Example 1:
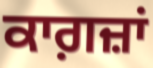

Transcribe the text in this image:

ਕਾਗ਼ਜ਼ਾਂ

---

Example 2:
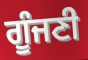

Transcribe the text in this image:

ਗੂੰਜਣੀ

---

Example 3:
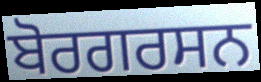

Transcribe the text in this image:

ਬੋਰਗਰਸਨ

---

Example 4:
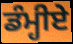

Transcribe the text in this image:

ਡੰਮ੍ਹੀਏ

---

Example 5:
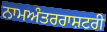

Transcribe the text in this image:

ਨਾਮਅੰਤਰਰਾਸ਼ਟਰੀ